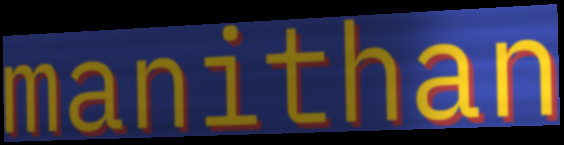
manithan